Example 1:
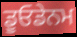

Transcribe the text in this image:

ਡੂਓਡੇਨਮ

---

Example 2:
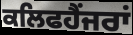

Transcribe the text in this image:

ਕਲਿਫਹੈਂਜਰਾਂ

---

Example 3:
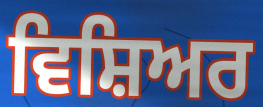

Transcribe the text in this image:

ਵਿਸ਼ਿਅਰ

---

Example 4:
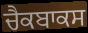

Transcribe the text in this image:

ਚੈਕਬਾਕਸ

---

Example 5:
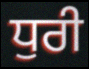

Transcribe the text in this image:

ਧੁਰੀ